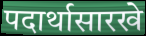
पदार्थासारखे